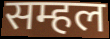
सम्हल